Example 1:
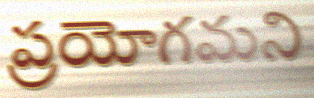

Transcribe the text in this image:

ప్రయోగమని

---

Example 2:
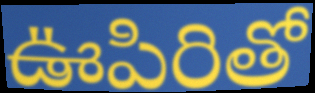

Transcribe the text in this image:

ఊపిరితో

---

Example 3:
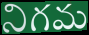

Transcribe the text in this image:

నిగమ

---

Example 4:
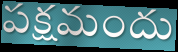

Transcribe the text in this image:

పక్షమందు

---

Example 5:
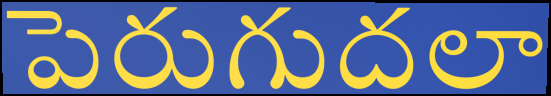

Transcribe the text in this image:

పెరుగుదలా